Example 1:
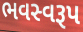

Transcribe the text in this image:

ભવસ્વરૂપ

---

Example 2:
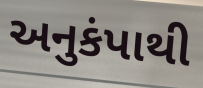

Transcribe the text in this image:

અનુકંપાથી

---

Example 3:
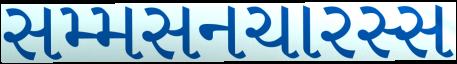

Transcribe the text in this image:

સમ્મસનચારસ્સ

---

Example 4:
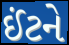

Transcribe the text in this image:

ઈંટને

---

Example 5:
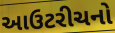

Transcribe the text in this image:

આઉટરીચનો